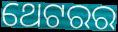
ଥେଟରର